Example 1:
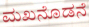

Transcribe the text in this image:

ಮಖನೊಡನೆ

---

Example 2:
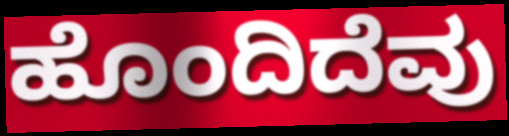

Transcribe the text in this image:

ಹೊಂದಿದೆವು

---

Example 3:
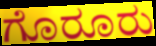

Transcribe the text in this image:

ಗೊರೂರು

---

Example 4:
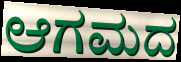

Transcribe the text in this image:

ಆಗಮದ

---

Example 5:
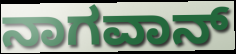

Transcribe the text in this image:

ನಾಗವಾನ್